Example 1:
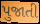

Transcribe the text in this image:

પુજાતી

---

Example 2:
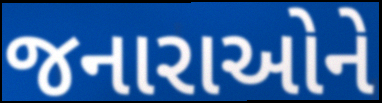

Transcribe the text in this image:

જનારાઓને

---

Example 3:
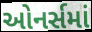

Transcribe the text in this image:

ઓનર્સમાં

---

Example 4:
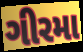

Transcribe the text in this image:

ગીરમા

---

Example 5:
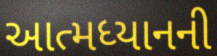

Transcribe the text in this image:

આત્મધ્યાનની